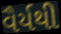
વૈર્યથી